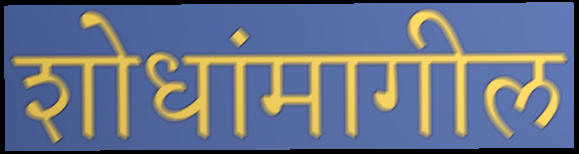
शोधांमागील